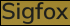
Sigfox